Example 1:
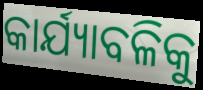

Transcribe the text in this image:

କାର୍ଯ୍ୟାବଳିକୁ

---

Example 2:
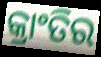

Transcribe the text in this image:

କ୍ରାଂତିର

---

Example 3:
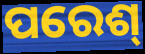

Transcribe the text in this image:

ପରେଶ୍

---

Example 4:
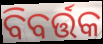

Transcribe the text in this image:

ବିବର୍ତ୍ତକ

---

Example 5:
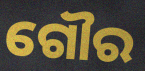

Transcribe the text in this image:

ଗୌର